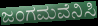
ಜಂಗಮವೆನಿಸಿ